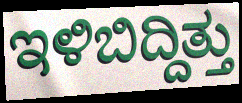
ಇಳಿಬಿದ್ದಿತ್ತು